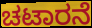
ಚಟಾರನೆ